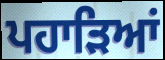
ਪਹਾੜਿਆਂ